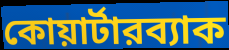
কোয়ার্টারব্যাক